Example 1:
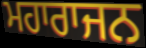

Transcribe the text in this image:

ਮਹਾਰਾਜਨ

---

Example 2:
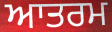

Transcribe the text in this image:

ਆਤਰਮ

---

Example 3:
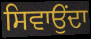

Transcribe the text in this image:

ਸਿਵਾਉਂਦਾ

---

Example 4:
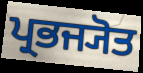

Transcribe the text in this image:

ਪ੍ਰਭਜ੍ਯੋਤ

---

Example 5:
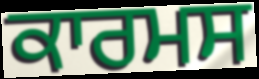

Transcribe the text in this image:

ਕਾਰਮਸ